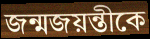
জন্মজয়ন্তীকে